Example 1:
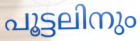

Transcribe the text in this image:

പൂട്ടലിനും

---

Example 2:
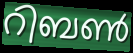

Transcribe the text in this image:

റിബൺ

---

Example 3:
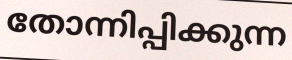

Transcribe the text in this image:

തോന്നിപ്പിക്കുന്ന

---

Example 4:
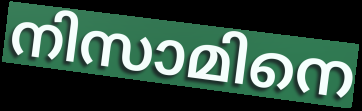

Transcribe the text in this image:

നിസാമിനെ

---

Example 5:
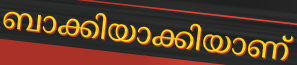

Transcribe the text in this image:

ബാക്കിയാക്കിയാണ്